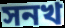
সনখ